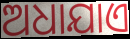
ଅଧାଯାଏ